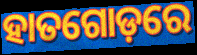
ହାତଗୋଡ଼ରେ